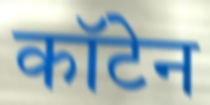
कॉटेन